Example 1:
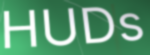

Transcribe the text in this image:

HUDs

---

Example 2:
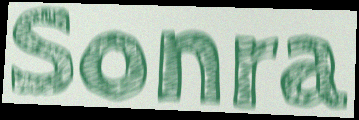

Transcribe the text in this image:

Sonra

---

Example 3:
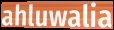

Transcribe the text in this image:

ahluwalia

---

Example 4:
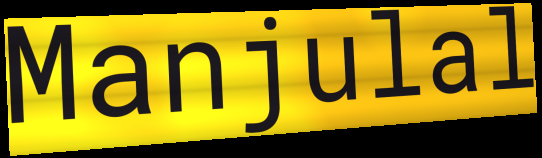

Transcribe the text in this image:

Manjulal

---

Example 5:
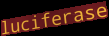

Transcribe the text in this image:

luciferase